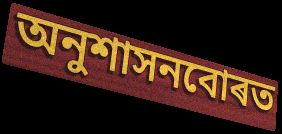
অনুশাসনবোৰত